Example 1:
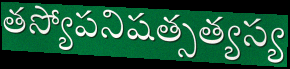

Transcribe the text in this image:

తస్యోపనిషత్సత్యస్య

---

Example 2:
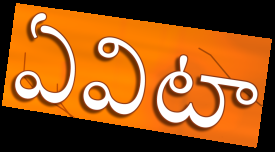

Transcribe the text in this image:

ఏవిటా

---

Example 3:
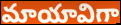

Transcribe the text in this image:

మాయావిగా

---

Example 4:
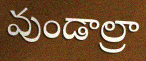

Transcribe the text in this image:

వుండాల్రా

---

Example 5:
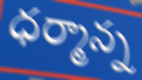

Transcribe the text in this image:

ధర్మాన్న